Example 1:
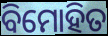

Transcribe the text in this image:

ବିମୋହିତ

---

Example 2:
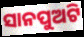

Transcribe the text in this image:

ସାନପୁଅଟି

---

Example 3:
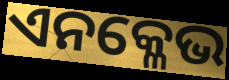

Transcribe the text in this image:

ଏନକ୍ଳେଭ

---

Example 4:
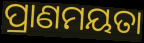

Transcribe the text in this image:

ପ୍ରାଣମୟତା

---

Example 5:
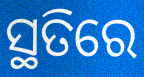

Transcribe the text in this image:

ସ୍ଥତିରେ